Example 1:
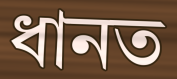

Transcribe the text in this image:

ধানত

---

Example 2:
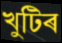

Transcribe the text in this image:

খুটিৰ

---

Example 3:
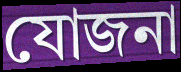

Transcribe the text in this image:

যোজনা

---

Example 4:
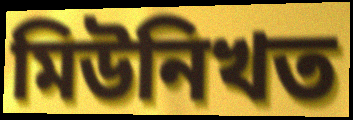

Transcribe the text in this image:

মিউনিখত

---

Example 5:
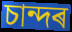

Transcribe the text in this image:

চান্দৰ